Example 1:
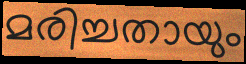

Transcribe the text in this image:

മരിച്ചതായും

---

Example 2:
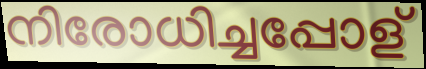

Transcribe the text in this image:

നിരോധിച്ചപ്പോള്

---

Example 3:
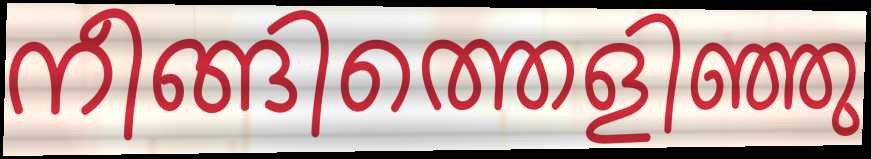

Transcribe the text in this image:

നീങ്ങിത്തെളിഞ്ഞു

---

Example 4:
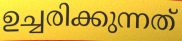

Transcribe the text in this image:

ഉച്ചരിക്കുന്നത്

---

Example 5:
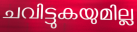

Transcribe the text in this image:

ചവിട്ടുകയുമില്ല